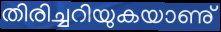
തിരിച്ചറിയുകയാണു്